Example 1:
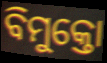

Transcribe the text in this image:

ବିମୁକ୍ତୋ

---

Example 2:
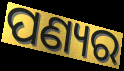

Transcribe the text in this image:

ପଣ୍ୟର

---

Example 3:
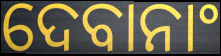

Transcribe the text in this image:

ଦେବାନାଂ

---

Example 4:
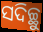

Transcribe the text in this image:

ସଦିଚ୍ଛୁ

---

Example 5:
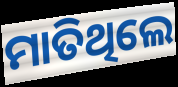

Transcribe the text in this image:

ମାତିଥିଲେ